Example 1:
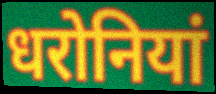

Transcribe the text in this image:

धरोनियां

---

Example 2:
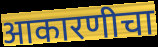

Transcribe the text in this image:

आकारणीचा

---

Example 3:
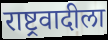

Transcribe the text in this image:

राष्ट्रवादीला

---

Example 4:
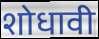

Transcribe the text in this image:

शोधावी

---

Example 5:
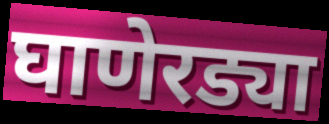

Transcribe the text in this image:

घाणेरड्या